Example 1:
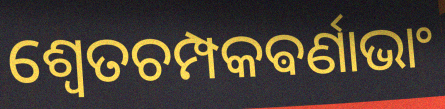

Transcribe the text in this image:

ଶ୍ଵେତଚମ୍ପକଵର୍ଣାଭାଂ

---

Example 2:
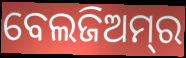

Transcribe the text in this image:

ବେଲଜିଅମ୍‌ର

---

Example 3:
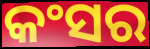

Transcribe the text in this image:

କଂସର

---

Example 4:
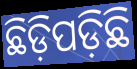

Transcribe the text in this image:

ଛିଡ଼ିପଡ଼ିଛି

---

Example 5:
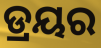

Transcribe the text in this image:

ଡ୍ରୟର